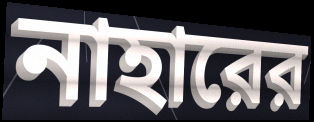
নাহারের